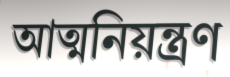
আত্মনিয়ন্ত্ৰণ